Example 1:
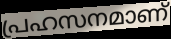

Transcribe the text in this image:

പ്രഹസനമാണ്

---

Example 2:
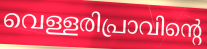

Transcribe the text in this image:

വെള്ളരിപ്രാവിന്റെ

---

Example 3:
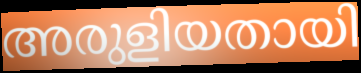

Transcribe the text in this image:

അരുളിയതായി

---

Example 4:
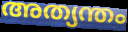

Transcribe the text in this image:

അത്യന്തം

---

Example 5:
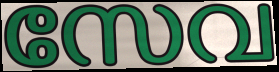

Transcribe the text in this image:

സേവ